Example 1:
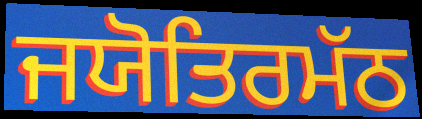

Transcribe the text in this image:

ਜਯੋਤਿਰਮੱਠ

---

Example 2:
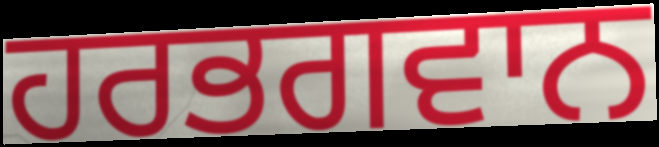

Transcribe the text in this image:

ਹਰਭਗਵਾਨ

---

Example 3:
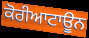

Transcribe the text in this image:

ਕੋਰੀਆਟਾਊਨ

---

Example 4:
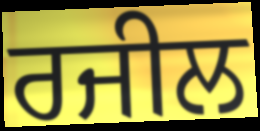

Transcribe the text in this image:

ਰਜੀਲ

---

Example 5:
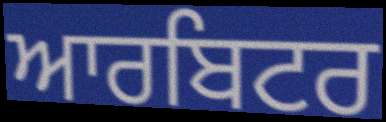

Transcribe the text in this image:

ਆਰਬਿਟਰ